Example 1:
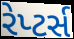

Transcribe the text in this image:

રેપ્ટર્સ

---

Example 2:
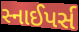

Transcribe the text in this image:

સ્નાઈપર્સ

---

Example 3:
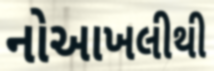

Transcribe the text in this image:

નોઆખલીથી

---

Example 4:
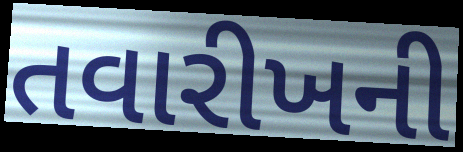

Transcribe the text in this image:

તવારીખની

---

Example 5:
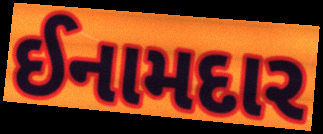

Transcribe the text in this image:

ઈનામદાર